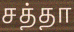
சத்தா